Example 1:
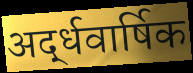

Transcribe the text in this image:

अर्द्धवार्षिक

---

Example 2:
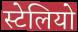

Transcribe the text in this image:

स्टेलियो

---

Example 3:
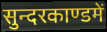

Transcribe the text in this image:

सुन्दरकाण्डमें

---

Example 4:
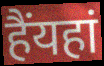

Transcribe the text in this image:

हैंयहां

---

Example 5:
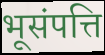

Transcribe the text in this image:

भूसंपत्ति